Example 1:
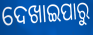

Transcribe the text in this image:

ଦେଖାଇପାରୁ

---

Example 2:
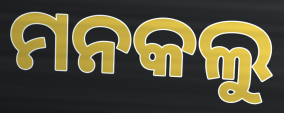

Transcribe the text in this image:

ମନକଲୁ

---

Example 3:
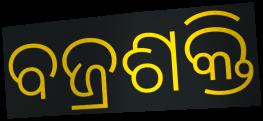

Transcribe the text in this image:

ବଜ୍ରଶକ୍ତି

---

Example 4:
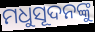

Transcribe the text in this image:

ମଧୁସୂଦନଙ୍କୁ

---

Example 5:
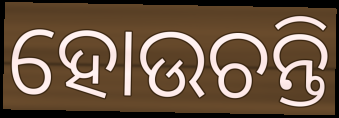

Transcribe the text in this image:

ହୋଉଚନ୍ତି